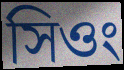
সিওং